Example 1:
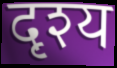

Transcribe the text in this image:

दृश्य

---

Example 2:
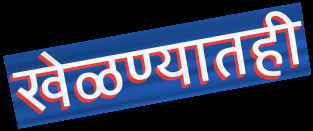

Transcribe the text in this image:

खेळण्यातही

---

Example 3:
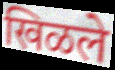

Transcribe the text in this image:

खिळले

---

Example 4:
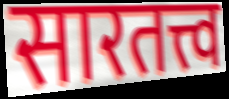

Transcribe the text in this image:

सारतत्त्व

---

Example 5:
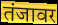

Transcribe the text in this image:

तंजावर